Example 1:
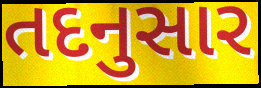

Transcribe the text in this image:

તદનુસાર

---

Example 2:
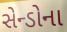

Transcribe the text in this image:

સેન્ડોના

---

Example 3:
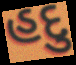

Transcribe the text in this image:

હદુ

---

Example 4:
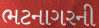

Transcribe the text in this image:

ભટનાગરની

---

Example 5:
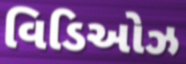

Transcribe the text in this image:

વિડિઓઝ